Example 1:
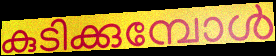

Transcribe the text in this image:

കുടിക്കുമ്പോൾ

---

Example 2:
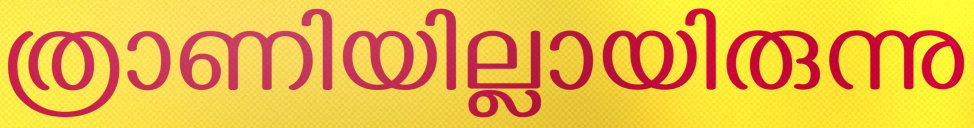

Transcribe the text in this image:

ത്രാണിയില്ലായിരുന്നു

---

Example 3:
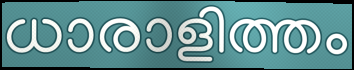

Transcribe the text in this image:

ധാരാളിത്തം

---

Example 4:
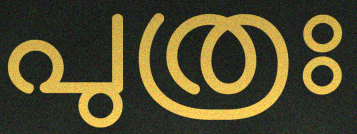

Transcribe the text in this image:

പുത്രഃ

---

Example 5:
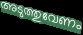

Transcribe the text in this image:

അടുത്തുവേണം